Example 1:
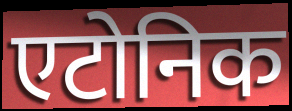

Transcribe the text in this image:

एटोनिक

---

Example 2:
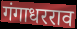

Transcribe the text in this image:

गंगाधरराव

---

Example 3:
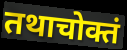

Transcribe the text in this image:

तथाचोक्तं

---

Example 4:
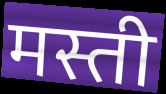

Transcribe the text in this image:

मस्‍ती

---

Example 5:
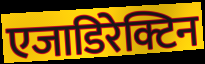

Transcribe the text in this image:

एजाडिरेक्टिन